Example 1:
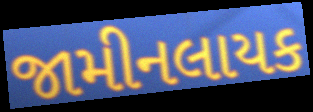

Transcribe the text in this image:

જામીનલાયક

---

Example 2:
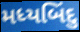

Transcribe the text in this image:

મધ્યબિંદુ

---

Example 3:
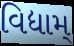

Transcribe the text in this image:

વિદ્યામ્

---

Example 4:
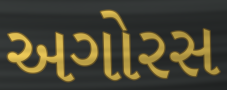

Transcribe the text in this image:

અગોરસ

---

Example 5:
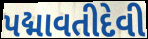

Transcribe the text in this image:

પદ્માવતીદેવી